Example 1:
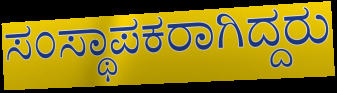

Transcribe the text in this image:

ಸಂಸ್ಥಾಪಕರಾಗಿದ್ದರು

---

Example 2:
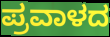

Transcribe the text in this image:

ಪ್ರವಾಳದ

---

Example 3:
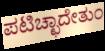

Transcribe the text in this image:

ಪಟಿಚ್ಛಾದೇತುಂ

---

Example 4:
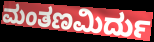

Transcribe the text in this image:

ಮಂತಣಮಿರ್ದು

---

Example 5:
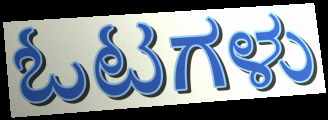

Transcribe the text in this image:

ಓಟಗಳು